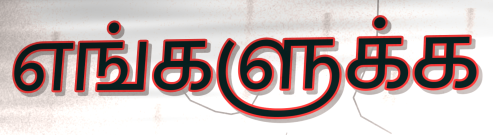
எங்களுக்க